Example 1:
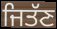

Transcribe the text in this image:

ਜਿਤੱਣ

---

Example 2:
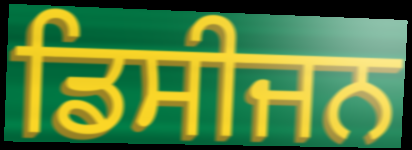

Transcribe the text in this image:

ਡਿਸੀਜਨ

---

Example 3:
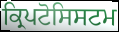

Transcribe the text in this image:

ਕ੍ਰਿਪਟੋਸਿਸਟਮ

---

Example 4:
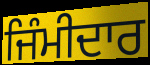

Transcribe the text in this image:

ਜਿੰਮੀਦਾਰ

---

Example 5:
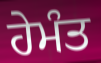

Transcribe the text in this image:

ਹੇਮੰਤ